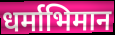
धर्माभिमान